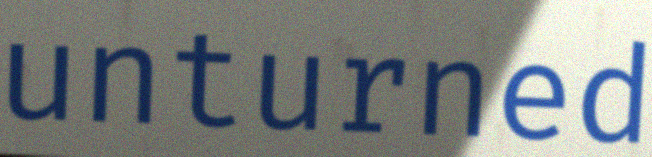
unturned